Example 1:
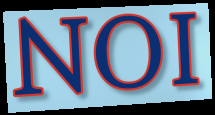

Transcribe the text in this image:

NOI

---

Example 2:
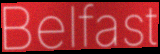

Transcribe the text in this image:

Belfast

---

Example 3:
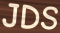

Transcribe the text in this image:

JDS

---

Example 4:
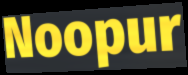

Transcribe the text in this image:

Noopur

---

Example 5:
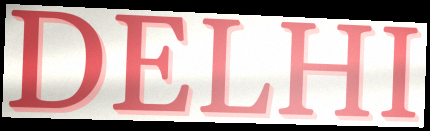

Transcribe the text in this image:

DELHI